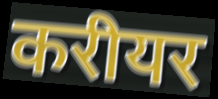
करीयर